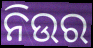
ନିଉର